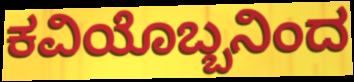
ಕವಿಯೊಬ್ಬನಿಂದ